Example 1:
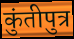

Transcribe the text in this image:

कुंतीपुत्र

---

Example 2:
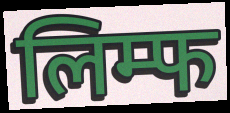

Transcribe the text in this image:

लिम्फ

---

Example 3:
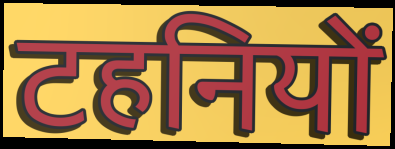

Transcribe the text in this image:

टहनियों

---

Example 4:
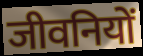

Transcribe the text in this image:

जीवनियों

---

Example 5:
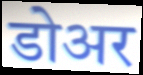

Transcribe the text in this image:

डोअर